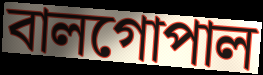
বালগোপাল